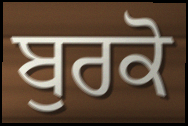
ਬੁਰਕੋ